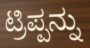
ಟ್ರಿಪ್ಪನ್ನು